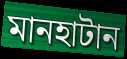
মানহাটান